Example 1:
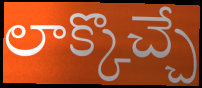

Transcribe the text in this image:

లాక్కొచ్చే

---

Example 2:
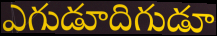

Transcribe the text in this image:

ఎగుడూదిగుడూ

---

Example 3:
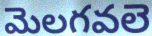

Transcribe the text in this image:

మెలగవలె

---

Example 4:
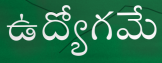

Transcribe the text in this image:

ఉద్యోగమే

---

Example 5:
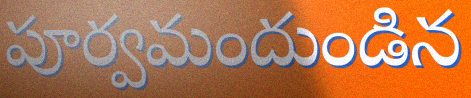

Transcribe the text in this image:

పూర్వమందుండిన